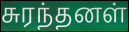
சுரந்தனள்